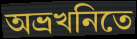
অভ্রখনিতে